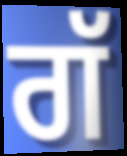
ਗੱ